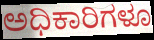
ಅಧಿಕಾರಿಗಳೂ